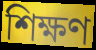
শিক্ষণ